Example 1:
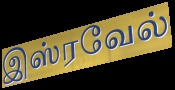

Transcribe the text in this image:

இஸ்ரவேல்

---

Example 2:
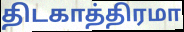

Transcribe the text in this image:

திடகாத்திரமா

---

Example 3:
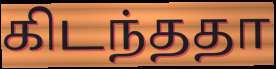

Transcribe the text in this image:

கிடந்ததா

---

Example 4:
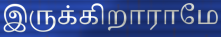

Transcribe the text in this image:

இருக்கிறாராமே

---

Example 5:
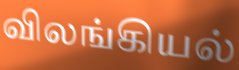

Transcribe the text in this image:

விலங்கியல்